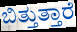
ಬಿತ್ತುತ್ತಾರೆ